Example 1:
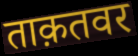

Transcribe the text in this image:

ताक़तवर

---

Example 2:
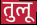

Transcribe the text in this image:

तुलू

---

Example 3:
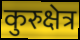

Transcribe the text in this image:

कुरुक्षेत्र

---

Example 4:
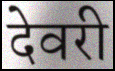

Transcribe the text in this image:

देवरी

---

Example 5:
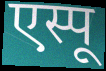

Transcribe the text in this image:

एस्पू